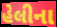
હેલીના